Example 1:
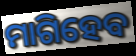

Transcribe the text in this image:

ମାଗିହେବ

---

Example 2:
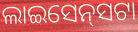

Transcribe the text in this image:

ଲାଇସେନ୍‍ସଟା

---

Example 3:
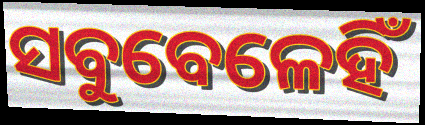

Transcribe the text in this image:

ସବୁବେଳେହିଁ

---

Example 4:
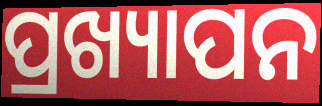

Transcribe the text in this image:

ପ୍ରଖ୍ୟାପନ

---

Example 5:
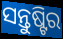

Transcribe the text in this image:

ସନ୍ତୁଷ୍ଟିର